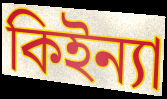
কিইন্যা